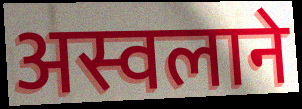
अस्वलाने